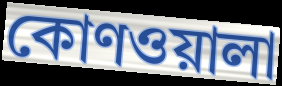
কোণওয়ালা